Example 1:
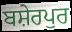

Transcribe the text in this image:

ਬਸ਼ੇਰਪੁਰ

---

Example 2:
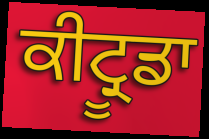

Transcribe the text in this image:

ਕੀਟ੍ਰੂਡਾ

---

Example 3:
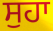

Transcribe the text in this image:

ਸੁਹਾ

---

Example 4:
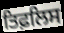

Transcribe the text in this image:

ਤਿਫ਼ਲਿਸ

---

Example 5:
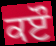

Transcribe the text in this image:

ਕੲੌ